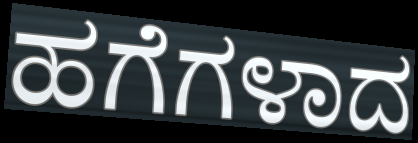
ಹಗೆಗಳಾದ